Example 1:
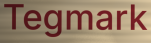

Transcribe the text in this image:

Tegmark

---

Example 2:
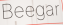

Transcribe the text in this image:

Beegar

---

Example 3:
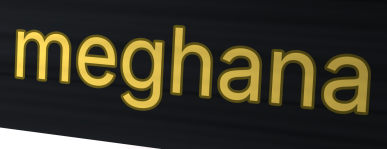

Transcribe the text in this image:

meghana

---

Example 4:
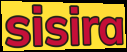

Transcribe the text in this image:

sisira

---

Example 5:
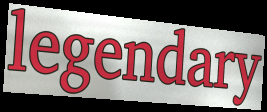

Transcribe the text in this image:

legendary